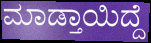
ಮಾಡ್ತಾಯಿದ್ದೆ